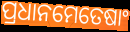
ପ୍ରଧାନମେତେଷାଂ